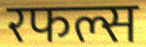
रफल्स